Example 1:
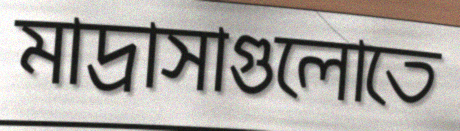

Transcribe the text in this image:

মাদ্রাসাগুলোতে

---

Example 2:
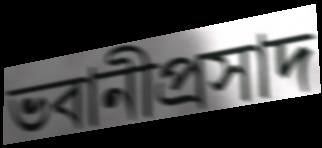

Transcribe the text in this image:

ভবানীপ্রসাদ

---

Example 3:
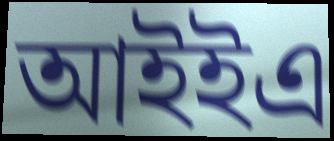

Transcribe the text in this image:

আইইএ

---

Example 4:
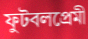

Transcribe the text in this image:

ফুটবলপ্রেমী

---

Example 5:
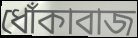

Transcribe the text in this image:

ধোঁকাবাজ